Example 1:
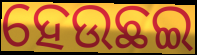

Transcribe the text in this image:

ହେଉଛଇ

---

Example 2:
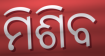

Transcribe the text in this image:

ମିଶିବ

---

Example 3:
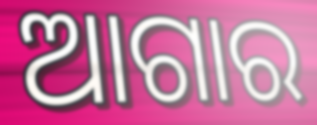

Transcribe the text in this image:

ଆଗାର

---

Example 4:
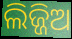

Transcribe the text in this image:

ଲିଜ୍ଜିଅ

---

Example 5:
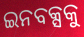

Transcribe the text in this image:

ଇନବକ୍ସକୁ